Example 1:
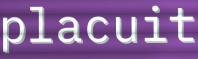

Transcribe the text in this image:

placuit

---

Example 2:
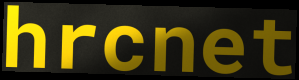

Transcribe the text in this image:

hrcnet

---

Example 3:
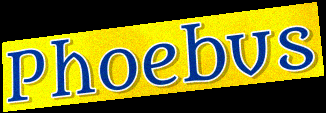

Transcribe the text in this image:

Phoebus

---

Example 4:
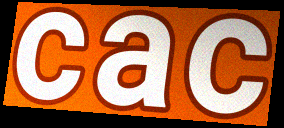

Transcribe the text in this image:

cac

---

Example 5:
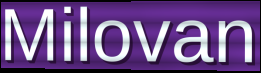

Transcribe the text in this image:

Milovan